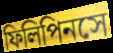
ফিলিপিনসে